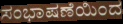
ಸಂಭಾಷಣೆಯಿಂದ